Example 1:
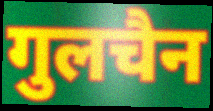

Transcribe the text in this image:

गुलचैन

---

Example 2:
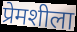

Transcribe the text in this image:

प्रेमशीला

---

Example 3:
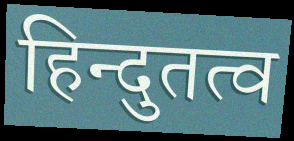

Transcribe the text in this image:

हिन्दुतत्व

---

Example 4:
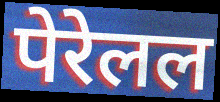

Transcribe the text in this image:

पेरेलल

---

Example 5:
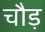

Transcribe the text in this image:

चौड़